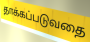
தாக்கப்படுவதை